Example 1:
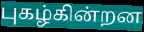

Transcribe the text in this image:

புகழ்கின்றன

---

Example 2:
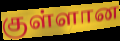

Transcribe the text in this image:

குள்ளான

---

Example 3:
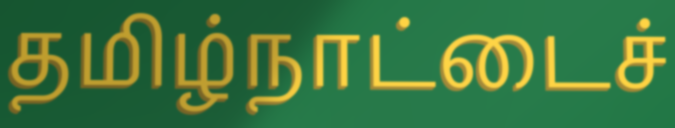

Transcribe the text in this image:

தமிழ்நாட்டைச்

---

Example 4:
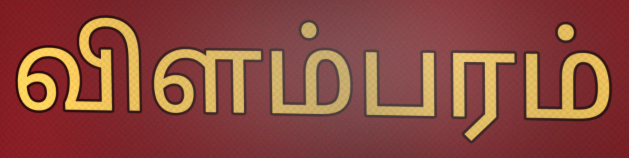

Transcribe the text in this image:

விளம்பரம்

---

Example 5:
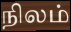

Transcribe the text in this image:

நிலம்